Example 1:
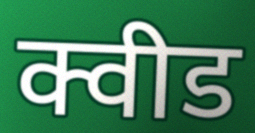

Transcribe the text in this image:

क्वीड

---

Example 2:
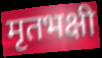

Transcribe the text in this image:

मृतभक्षी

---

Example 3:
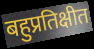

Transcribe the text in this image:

बहुप्रतिक्षीत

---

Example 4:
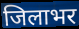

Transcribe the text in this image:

जिलाभर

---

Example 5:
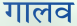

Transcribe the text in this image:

गालव